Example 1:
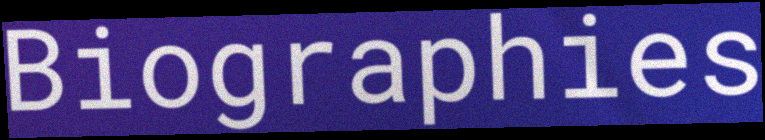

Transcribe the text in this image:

Biographies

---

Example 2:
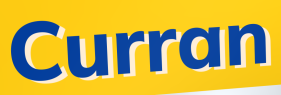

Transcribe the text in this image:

Curran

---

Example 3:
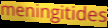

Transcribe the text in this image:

meningitides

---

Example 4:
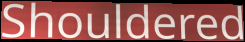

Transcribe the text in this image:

Shouldered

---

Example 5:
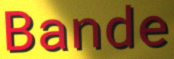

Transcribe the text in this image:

Bande